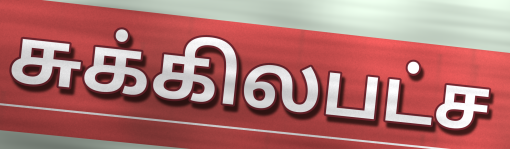
சுக்கிலபட்ச